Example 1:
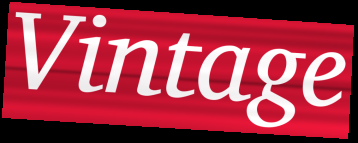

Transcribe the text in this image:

Vintage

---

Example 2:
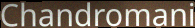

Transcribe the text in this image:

Chandromani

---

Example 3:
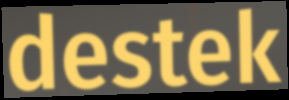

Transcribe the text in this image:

destek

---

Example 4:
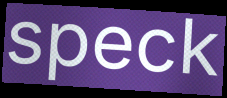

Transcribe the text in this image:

speck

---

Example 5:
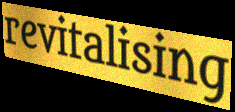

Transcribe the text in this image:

revitalising